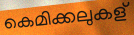
കെമിക്കലുകള്